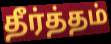
தீர்த்தம்